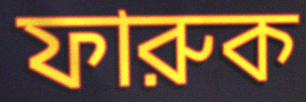
ফাৰুক